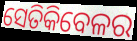
ସେତିକିବେଳର